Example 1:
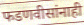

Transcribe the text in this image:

फडणवीसांनाही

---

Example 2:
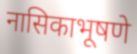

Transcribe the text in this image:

नासिकाभूषणे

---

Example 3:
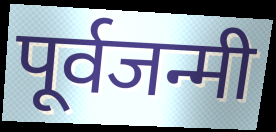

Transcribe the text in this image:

पूर्वजन्मी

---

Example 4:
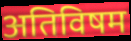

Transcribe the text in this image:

अतिविषम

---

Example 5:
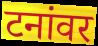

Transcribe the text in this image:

टनांवर